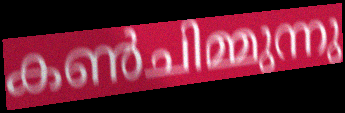
കൺചിമ്മുന്നു